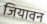
जियावन